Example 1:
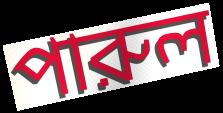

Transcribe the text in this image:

পারুল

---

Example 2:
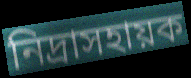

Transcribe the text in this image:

নিদ্রাসহায়ক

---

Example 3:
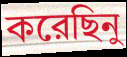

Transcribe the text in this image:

করেছিনু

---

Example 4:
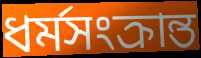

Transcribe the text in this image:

ধর্মসংক্রান্ত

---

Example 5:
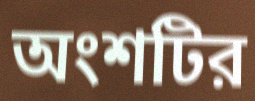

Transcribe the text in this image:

অংশটির